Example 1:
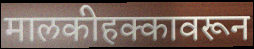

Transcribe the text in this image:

मालकीहक्कावरून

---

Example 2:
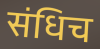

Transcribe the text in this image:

संधिच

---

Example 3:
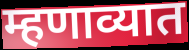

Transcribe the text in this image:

म्हणाव्यात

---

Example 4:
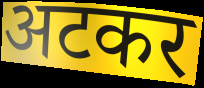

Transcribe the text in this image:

अटकर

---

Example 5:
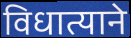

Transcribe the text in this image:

विधात्याने